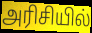
அரிசியில்